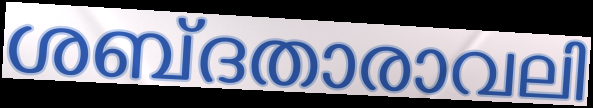
ശബ്‌ദതാരാവലി